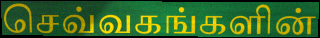
செவ்வகங்களின்